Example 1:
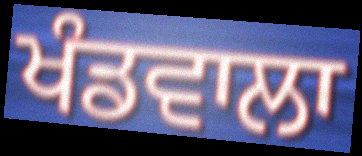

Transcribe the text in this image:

ਖੰਡਵਾਲਾ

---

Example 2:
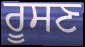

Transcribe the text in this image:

ਰੂਸਣ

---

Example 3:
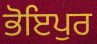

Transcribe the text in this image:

ਭੋਇਪੁਰ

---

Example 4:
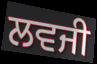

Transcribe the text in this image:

ਲਵਜੀ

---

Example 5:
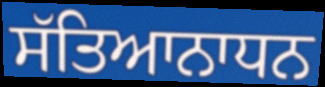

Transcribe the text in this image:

ਸੱਤਿਆਨਾਧਨ